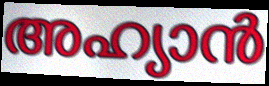
അഹ്യാൻ